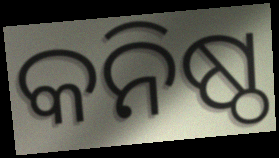
କନିଷ୍ଠ